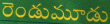
రెండుమూడు